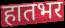
हातभर